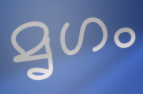
മൃഗം